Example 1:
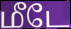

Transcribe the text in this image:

மீடே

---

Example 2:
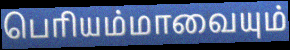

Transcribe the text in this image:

பெரியம்மாவையும்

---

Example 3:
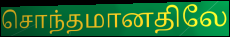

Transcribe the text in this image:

சொந்தமானதிலே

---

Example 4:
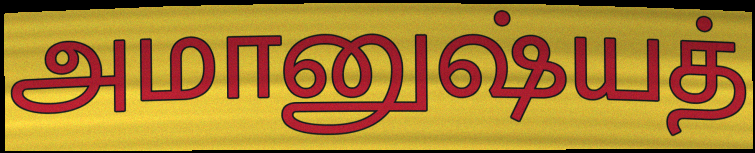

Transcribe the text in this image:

அமானுஷ்யத்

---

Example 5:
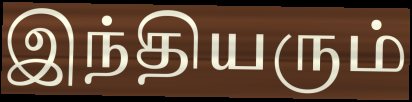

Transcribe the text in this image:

இந்தியரும்